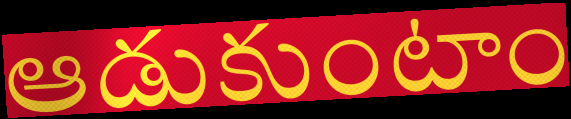
ఆడుకుంటాం